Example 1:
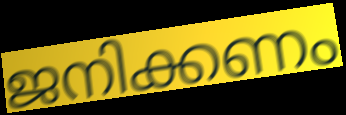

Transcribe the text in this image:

ജനിക്കണം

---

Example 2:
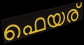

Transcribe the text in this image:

ഫെയര്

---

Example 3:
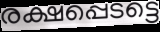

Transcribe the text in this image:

രക്ഷപ്പെടട്ടെ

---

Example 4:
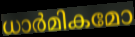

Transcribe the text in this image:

ധാർമികമോ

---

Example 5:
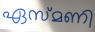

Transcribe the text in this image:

ഏസ്മണി